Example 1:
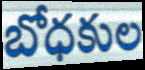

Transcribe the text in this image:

బోధకుల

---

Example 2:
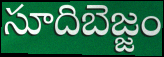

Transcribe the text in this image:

సూదిబెజ్జం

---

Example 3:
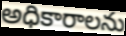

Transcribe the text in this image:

అధికారాలను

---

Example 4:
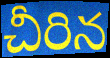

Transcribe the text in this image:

చీరిన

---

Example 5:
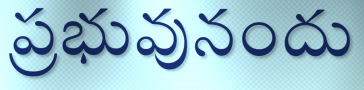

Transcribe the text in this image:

ప్రభువునందు